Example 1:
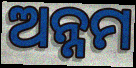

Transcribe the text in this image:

ଅନ୍ନମ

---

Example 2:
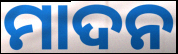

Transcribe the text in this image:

ମାଦନ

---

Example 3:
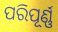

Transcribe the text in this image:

ପରିପୂର୍ଣ୍ଣ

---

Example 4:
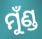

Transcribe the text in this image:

ମୁଁଣ୍ଡ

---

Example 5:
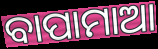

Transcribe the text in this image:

ବାପାମାଆ